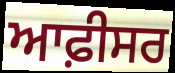
ਆਫ਼ੀਸਰ